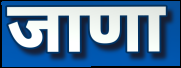
जाणा